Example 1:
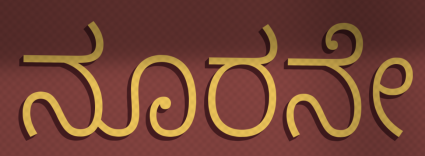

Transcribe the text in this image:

ನೂರನೇ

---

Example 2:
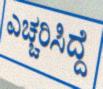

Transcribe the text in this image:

ಎಚ್ಚರಿಸಿದ್ದೆ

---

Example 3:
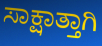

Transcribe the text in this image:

ಸಾಕ್ಷಾತ್ತಾಗಿ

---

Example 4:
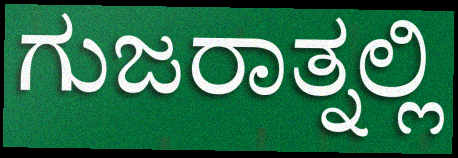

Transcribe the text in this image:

ಗುಜರಾತ್ನಲ್ಲಿ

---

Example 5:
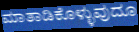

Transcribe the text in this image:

ಮಾತಾಡಿಕೊಳ್ಳುವುದೂ